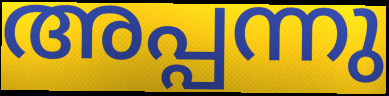
അപ്പന്നു